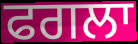
ਫਗਲਾ